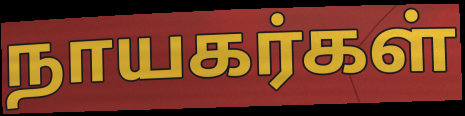
நாயகர்கள்